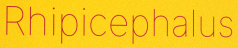
Rhipicephalus